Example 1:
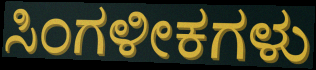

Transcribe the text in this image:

ಸಿಂಗಳೀಕಗಳು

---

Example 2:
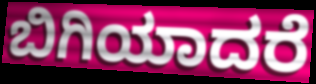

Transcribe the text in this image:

ಬಿಗಿಯಾದರೆ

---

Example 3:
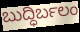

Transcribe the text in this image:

ಬುದ್ಧಿರ್ಬಲಂ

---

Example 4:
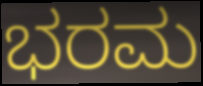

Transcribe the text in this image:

ಭರಮ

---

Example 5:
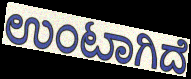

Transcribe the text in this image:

ಉಂಟಾಗಿದೆ